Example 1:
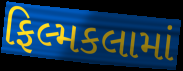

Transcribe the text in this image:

ફિલ્મકલામાં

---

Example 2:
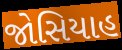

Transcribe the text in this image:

જોસિયાહ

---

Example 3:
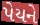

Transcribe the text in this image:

પેયને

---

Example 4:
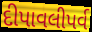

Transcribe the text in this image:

દીપાવલીપર્વ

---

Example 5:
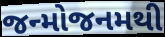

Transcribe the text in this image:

જન્મોજનમથી